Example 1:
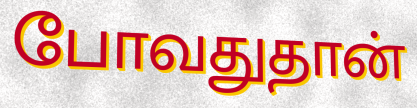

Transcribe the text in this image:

போவதுதான்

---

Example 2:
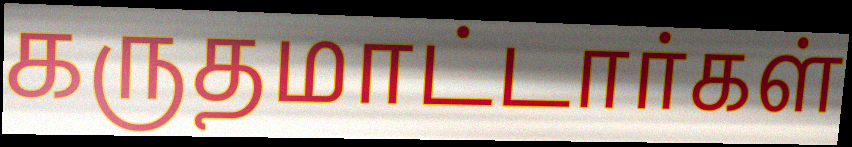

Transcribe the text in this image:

கருதமாட்டார்கள்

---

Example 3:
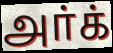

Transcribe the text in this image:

அர்க்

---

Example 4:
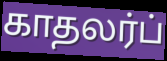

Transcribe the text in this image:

காதலர்ப்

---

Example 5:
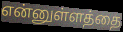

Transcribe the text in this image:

என்னுள்ளத்தை